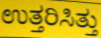
ಉತ್ತರಿಸಿತ್ತು